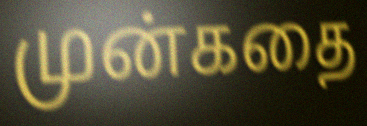
முன்கதை